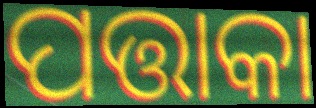
ପତ୍ତାକା